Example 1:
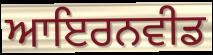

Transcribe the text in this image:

ਆਇਰਨਵੀਡ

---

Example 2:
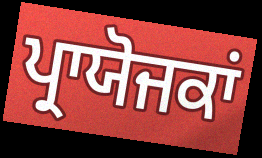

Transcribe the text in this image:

ਪ੍ਰਾਯੋਜਕਾਂ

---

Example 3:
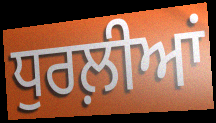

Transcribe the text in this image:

ਧੁਰਲ਼ੀਆਂ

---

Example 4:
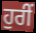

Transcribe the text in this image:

ਹੁਰੀਂ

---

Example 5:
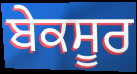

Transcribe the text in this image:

ਬੇਕਸੂਰ